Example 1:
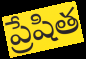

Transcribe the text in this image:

ప్రేషిత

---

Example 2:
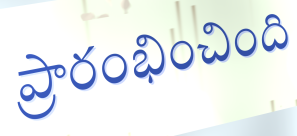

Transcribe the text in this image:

ప్రారంభించింది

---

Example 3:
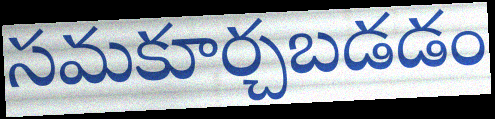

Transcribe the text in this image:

సమకూర్చబడడం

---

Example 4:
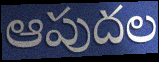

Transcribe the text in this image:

ఆపుదల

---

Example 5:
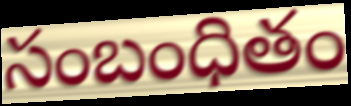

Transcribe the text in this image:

సంబంధితం